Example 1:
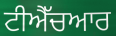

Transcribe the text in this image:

ਟੀਐੱਚਆਰ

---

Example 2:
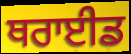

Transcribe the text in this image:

ਥਰਾਈਡ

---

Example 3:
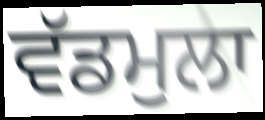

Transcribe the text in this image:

ਵੱਡਮੁਲਾ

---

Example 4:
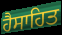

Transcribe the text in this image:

ਹੈਸਾਹਿਤ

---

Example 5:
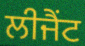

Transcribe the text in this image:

ਲੀਜੈਂਟ